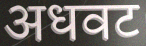
अधवट